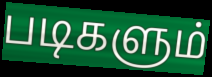
படிகளும்